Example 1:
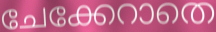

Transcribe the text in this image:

ചേക്കേറാതെ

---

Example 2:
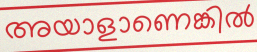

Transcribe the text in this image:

അയാളാണെങ്കിൽ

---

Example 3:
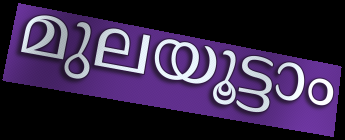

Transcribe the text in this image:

മുലയൂട്ടാം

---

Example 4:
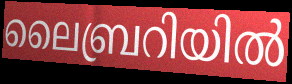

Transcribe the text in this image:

ലൈബ്രറിയിൽ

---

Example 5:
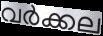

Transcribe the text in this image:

വർക്കല